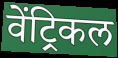
वेंट्रिकल